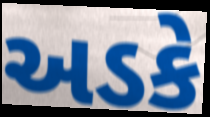
અડકે